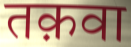
तक़वा